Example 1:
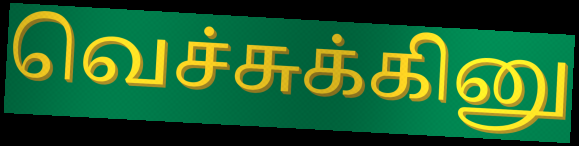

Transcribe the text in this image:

வெச்சுக்கினு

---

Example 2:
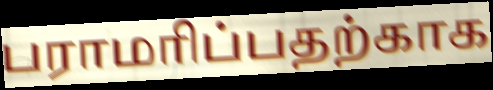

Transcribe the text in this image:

பராமரிப்பதற்காக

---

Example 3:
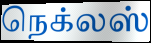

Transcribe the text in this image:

நெக்லஸ்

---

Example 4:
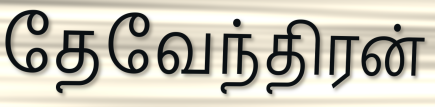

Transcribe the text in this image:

தேவேந்திரன்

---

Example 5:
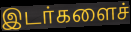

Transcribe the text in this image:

இடர்களைச்